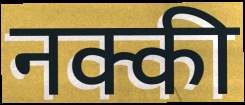
नक्की